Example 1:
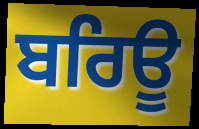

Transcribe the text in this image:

ਬਰਿਊ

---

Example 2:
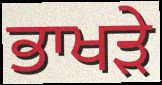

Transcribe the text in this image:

ਭਾਖੜੇ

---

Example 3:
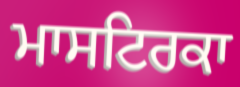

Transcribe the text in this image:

ਮਾਸਟਿਰਕਾ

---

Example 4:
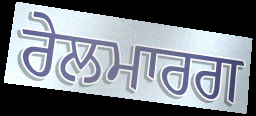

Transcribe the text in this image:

ਰੇਲਮਾਰਗ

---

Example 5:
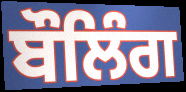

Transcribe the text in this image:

ਬੌਲਿੰਗ